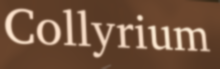
Collyrium